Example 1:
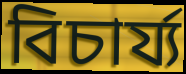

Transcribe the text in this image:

বিচাৰ্য্য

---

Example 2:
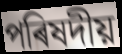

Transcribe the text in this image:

পৰিষদীয়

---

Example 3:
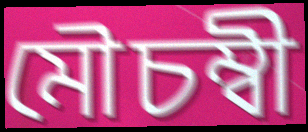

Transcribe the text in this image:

মৌচম্বী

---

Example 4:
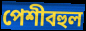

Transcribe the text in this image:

পেশীবহুল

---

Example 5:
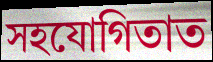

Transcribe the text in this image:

সহযোগিতাত